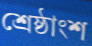
শ্রেষ্ঠাংশ